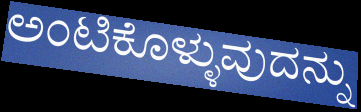
ಅಂಟಿಕೊಳ್ಳುವುದನ್ನು